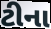
ટીના